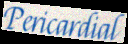
Pericardial